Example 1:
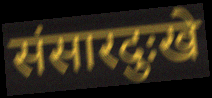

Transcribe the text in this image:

संसारदुःखे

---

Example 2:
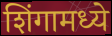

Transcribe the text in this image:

शिंगामध्ये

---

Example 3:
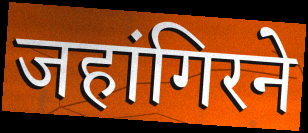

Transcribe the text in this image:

जहांगिरने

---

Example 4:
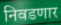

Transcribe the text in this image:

निवडणार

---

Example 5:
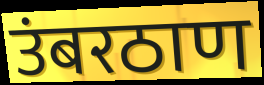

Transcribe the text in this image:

उंबरठाण